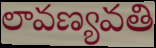
లావణ్యవతి